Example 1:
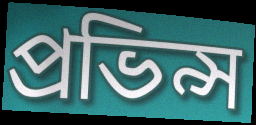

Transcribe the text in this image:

প্রভিন্স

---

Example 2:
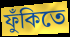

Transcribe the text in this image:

ফুঁকিতে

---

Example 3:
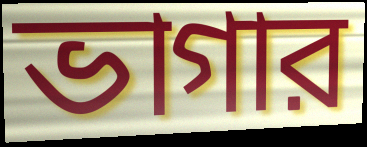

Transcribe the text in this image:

ভাগার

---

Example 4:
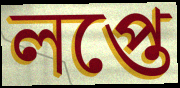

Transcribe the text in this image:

লপ্তে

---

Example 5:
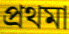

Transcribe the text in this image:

প্রথমা